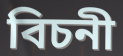
বিচনী